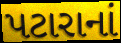
પટારાનાં